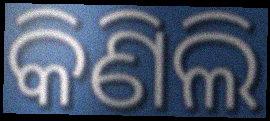
କିଣିଲି